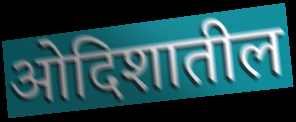
ओदिशातील